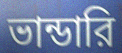
ভান্ডারি